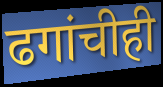
ढगांचीही